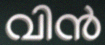
വിൻ